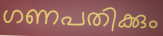
ഗണപതിക്കും